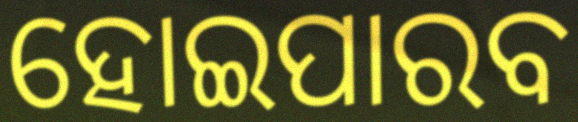
ହୋଇପାରବ